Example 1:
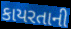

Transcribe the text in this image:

કાયરતાની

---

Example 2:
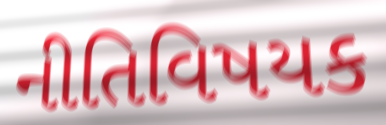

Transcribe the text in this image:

નીતિવિષયક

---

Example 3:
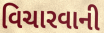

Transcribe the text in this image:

વિચારવાની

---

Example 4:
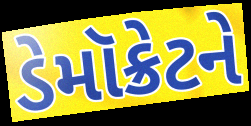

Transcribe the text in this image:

ડેમૉક્રેટને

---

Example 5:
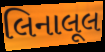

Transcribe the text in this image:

લિનાલૂલ